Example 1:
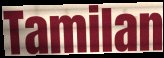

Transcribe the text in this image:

Tamilan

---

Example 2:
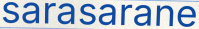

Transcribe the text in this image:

sarasarane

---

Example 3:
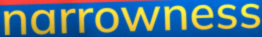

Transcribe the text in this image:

narrowness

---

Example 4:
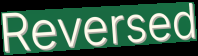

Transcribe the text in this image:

Reversed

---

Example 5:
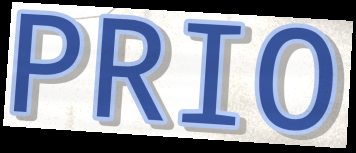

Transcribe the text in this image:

PRIO